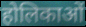
होलिकाओं